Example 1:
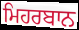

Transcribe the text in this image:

ਮਿਹਰਬਾਨ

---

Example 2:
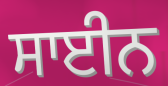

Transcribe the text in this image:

ਸਾਈਨ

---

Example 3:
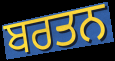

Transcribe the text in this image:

ਬਰਤਨ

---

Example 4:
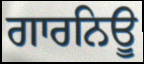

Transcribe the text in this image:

ਗਾਰਨਿਊ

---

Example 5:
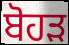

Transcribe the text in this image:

ਬੋਹੜ